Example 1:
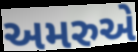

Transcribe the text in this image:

અમરુએ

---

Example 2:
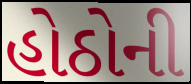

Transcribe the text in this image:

હોઠોની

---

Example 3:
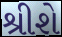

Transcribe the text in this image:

શ્રીશે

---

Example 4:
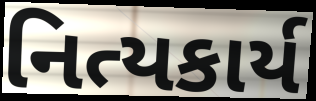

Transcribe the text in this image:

નિત્યકાર્ય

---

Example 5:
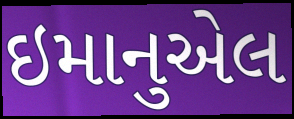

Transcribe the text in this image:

ઇમાનુએલ